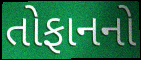
તોફાનનો